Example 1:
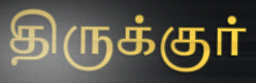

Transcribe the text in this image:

திருக்குர்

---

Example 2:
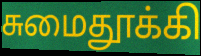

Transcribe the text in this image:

சுமைதூக்கி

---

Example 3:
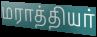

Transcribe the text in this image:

மராத்தியர்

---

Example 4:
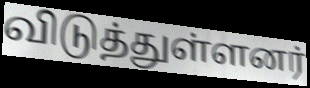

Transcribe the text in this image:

விடுத்துள்ளனர்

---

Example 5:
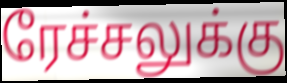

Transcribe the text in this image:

ரேச்சலுக்கு